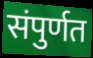
संपुर्णत